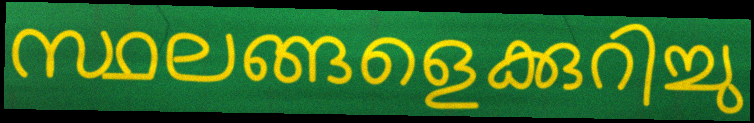
സ്ഥലങ്ങളെക്കുറിച്ചു